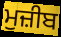
ਮੁਜ਼ੀਬ